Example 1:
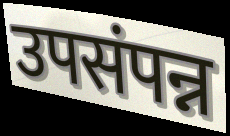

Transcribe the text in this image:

उपसंपन्न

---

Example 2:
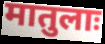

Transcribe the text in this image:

मातुलाः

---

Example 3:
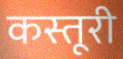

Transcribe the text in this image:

कस्तूरी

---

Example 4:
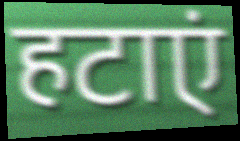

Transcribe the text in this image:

हटाएं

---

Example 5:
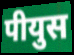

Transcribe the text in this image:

पीयुस